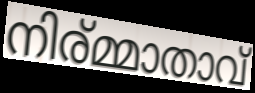
നിര്മ്മാതാവ്